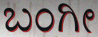
ಬಂಗೀ